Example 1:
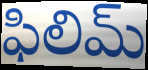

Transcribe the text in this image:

ఫిలిమ్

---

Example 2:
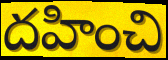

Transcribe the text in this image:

దహించి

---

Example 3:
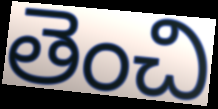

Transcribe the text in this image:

తెంచి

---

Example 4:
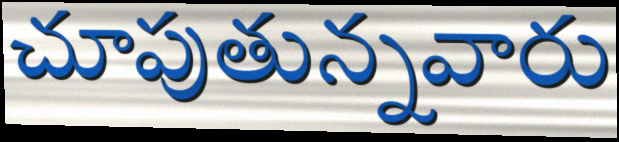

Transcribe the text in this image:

చూపుతున్నవారు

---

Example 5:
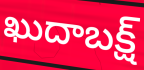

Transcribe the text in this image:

ఖుదాబక్ష్